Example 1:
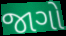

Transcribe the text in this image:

જાગો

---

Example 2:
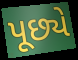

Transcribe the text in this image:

પૂછ્યે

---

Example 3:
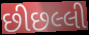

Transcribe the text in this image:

છીછલ્લી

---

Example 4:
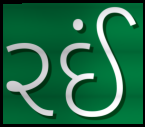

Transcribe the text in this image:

રઈં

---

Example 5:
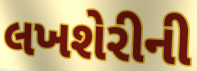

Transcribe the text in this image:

લખશેરીની